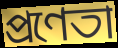
প্রণেতা